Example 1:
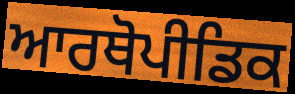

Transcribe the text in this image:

ਆਰਥੋਪੀਡਿਕ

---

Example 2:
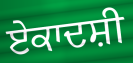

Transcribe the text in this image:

ਏਕਾਦਸ਼ੀ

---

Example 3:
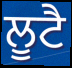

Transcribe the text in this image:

ਲੂਟੈ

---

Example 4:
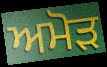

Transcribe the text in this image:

ਅਮੋੜ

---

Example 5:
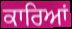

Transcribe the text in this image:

ਕਾਰਿਆਂ